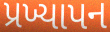
પ્રખ્યાપન